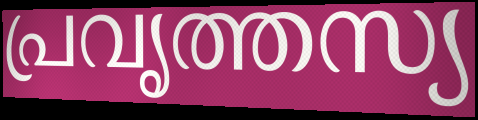
പ്രവൃത്തസ്യ